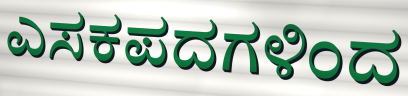
ಎಸಕಪದಗಳಿಂದ